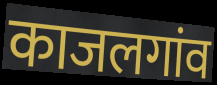
काजलगांव